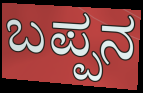
ಬಪ್ಪನ